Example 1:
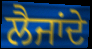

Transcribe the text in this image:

ਲੈਜਾਂਦੇ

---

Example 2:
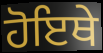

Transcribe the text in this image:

ਹੋਇਥੇ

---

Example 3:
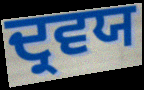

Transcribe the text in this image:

ਦ੍ਰਵਯ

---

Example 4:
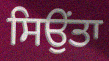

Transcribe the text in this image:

ਸਿਉਂਤਾ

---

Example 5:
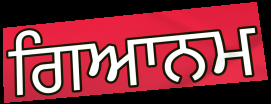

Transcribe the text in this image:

ਗਿਆਨਮ